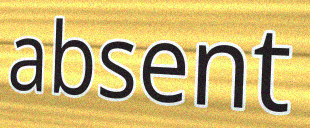
absent